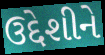
ઉદ્દેશીને